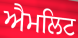
ਐਮਲਿਟ